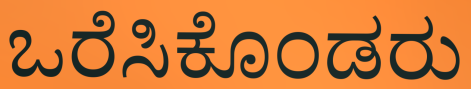
ಒರೆಸಿಕೊಂಡರು